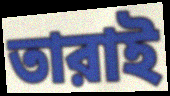
তারাই